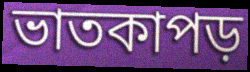
ভাতকাপড়